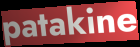
patakine